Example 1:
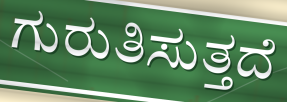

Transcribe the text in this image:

ಗುರುತಿಸುತ್ತದೆ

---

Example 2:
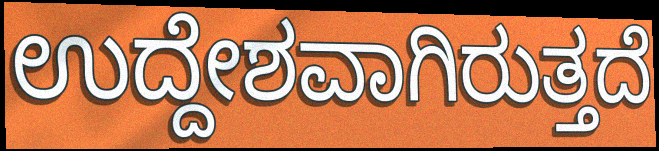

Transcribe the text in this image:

ಉದ್ದೇಶವಾಗಿರುತ್ತದೆ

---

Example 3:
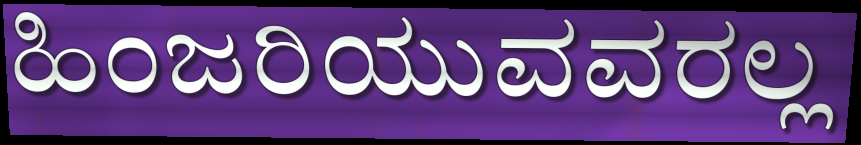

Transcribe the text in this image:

ಹಿಂಜರಿಯುವವರಲ್ಲ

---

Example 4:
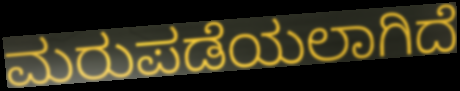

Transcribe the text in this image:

ಮರುಪಡೆಯಲಾಗಿದೆ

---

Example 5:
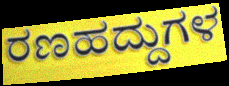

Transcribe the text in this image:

ರಣಹದ್ದುಗಳ